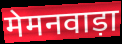
मेमनवाड़ा